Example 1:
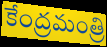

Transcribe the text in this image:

కేంద్రమంత్రి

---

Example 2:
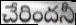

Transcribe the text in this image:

చేరిందనీ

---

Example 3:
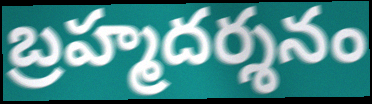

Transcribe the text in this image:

బ్రహ్మదర్శనం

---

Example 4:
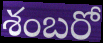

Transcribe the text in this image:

శంబరో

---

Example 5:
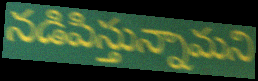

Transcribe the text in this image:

నడిపిస్తున్నామని